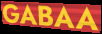
GABAA